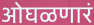
ओघळणारं